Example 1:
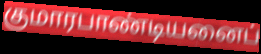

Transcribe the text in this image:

குமாரபாண்டியனைப்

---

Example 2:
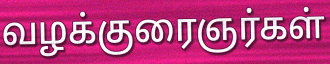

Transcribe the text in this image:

வழக்குரைஞர்கள்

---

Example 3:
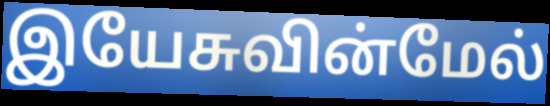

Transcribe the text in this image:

இயேசுவின்மேல்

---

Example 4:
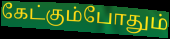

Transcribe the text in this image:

கேட்கும்போதும்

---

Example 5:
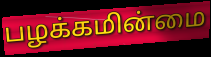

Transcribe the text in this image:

பழக்கமின்மை